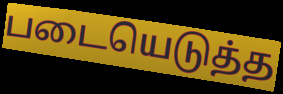
படையெடுத்த